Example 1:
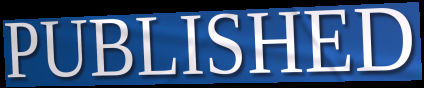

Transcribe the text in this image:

PUBLISHED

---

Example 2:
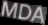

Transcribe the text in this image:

MDA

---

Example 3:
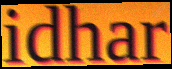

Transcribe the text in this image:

idhar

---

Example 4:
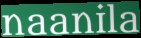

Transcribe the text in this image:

naanila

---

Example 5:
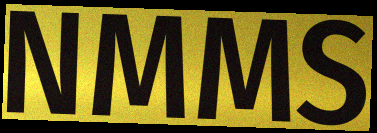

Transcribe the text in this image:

NMMS